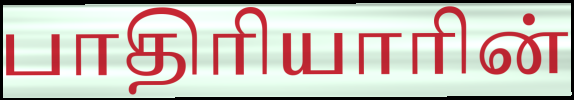
பாதிரியாரின்